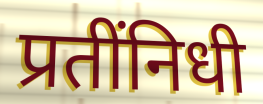
प्रतींनिधी